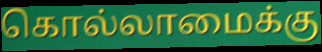
கொல்லாமைக்கு